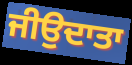
ਜੀਉਦਾਤਾ